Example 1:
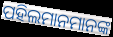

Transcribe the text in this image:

ପହିଲମାନମାନଙ୍କ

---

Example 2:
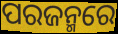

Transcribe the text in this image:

ପରଜନ୍ମରେ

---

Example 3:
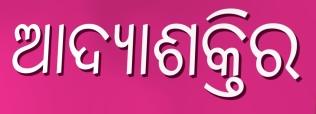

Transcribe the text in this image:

ଆଦ୍ୟାଶକ୍ତିର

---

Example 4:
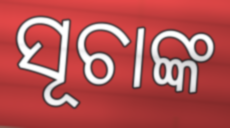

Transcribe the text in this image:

ସୂଚାଙ୍କ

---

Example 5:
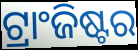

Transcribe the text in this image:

ଟ୍ରାଂଜିଷ୍ଟର